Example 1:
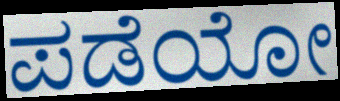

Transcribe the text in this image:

ಪಡೆಯೋ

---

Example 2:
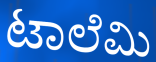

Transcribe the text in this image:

ಟಾಲೆಮಿ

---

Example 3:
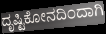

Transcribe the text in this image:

ದೃಷ್ಟಿಕೋನದಿಂದಾಗಿ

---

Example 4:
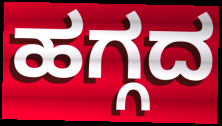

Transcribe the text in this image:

ಹಗ್ಗದ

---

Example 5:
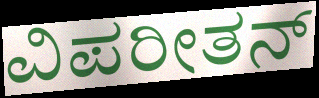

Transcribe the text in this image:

ವಿಪರೀತನ್